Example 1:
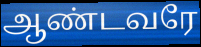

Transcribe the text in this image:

ஆண்டவரே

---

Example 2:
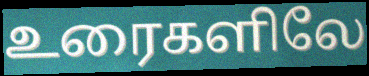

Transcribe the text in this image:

உரைகளிலே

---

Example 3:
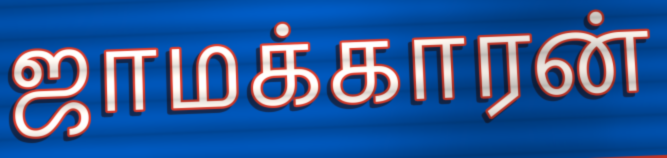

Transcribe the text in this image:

ஜாமக்காரன்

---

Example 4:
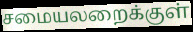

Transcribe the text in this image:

சமையலறைக்குள்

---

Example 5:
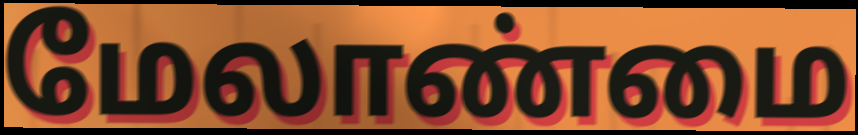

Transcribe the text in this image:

மேலாண்மை